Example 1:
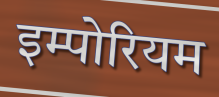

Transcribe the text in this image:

इम्पोरियम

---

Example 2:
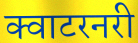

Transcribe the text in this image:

क्वाटरनरी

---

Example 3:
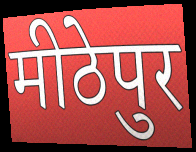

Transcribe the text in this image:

मीठेपुर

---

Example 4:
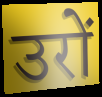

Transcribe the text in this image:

उरों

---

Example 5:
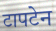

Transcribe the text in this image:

टापटेन